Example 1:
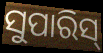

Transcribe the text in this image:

ସୁପାରିସ୍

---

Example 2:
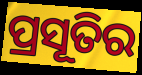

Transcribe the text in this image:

ପ୍ରସୂତିର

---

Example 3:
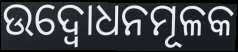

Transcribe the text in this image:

ଉଦ୍ବୋଧନମୂଳକ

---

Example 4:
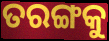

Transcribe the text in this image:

ତରଙ୍ଗକୁ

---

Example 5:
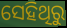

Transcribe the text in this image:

ସେହିଥିରୁ